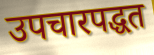
उपचारपद्धत